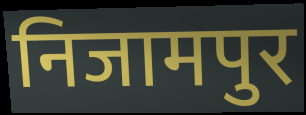
निजामपुर